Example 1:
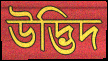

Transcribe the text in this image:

উদ্ভিদ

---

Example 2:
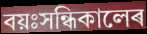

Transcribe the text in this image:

বয়ঃসন্ধিকালেৰ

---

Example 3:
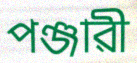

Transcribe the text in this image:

পঞ্জাৱী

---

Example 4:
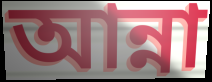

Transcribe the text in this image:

আন্না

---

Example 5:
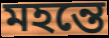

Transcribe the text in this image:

মহন্তে